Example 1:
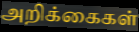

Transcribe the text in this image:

அறிக்கைகள்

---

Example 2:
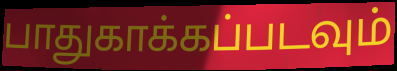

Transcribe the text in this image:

பாதுகாக்கப்படவும்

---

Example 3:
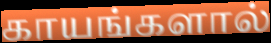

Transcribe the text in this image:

காயங்களால்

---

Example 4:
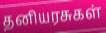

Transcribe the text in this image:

தனியரசுகள்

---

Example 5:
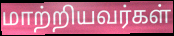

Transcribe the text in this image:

மாற்றியவர்கள்